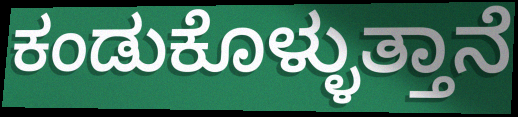
ಕಂಡುಕೊಳ್ಳುತ್ತಾನೆ